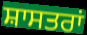
ਸ਼ਾਸਤਰਾਂ